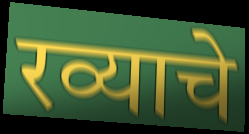
रव्याचे